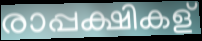
രാപ്പക്ഷികള്